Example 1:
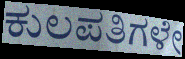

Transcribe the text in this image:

ಕುಲಪತಿಗಳೇ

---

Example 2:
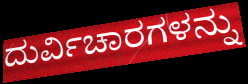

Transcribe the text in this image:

ದುರ್ವಿಚಾರಗಳನ್ನು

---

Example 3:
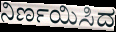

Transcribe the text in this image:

ನಿರ್ಣಯಿಸಿದ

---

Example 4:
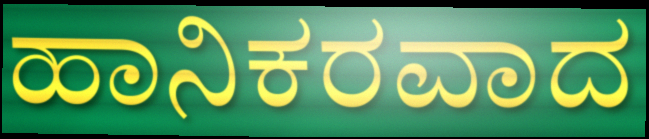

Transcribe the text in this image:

ಹಾನಿಕರವಾದ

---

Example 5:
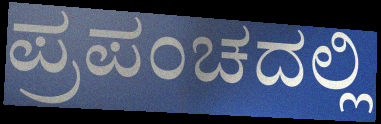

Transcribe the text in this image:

ಪ್ರಪಂಚದಲ್ಲಿ